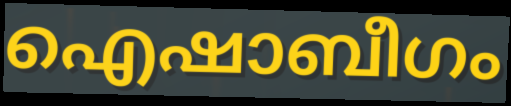
ഐഷാബീഗം